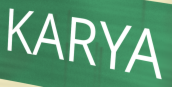
KARYA